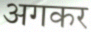
अगकर